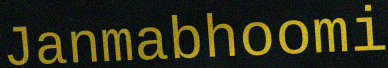
Janmabhoomi